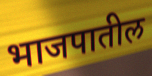
भाजपातील